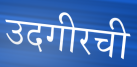
उदगीरची